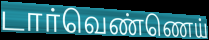
டார்வெண்ணெய்